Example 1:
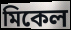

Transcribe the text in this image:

মিকেল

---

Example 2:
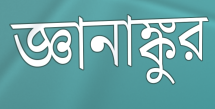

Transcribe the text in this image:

জ্ঞানাঙ্কুর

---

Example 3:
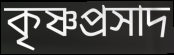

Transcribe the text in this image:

কৃষ্ণপ্রসাদ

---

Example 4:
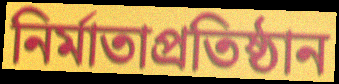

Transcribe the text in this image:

নির্মাতাপ্রতিষ্ঠান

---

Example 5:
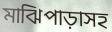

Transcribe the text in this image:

মাঝিপাড়াসহ